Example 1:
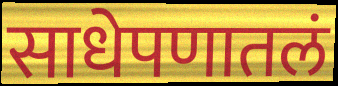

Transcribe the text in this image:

साधेपणातलं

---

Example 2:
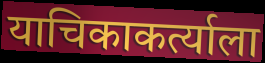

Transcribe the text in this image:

याचिकाकर्त्याला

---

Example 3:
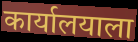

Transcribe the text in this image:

कार्यालयाला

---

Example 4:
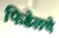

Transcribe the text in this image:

फिडेलचे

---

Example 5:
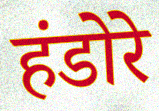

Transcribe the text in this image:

हंडोरे